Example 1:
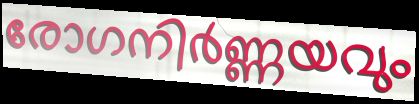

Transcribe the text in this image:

രോഗനിർണ്ണയവും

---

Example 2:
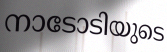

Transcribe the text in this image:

നാടോടിയുടെ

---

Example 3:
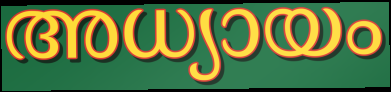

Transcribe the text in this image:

അധ്യായം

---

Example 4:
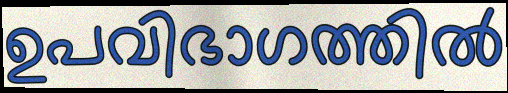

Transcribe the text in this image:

ഉപവിഭാഗത്തിൽ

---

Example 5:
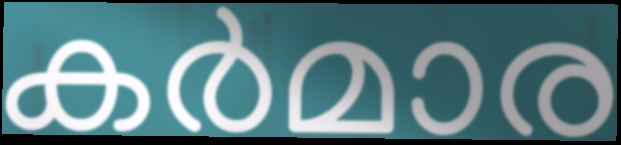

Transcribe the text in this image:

കർമാര